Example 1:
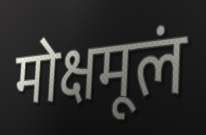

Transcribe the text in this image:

मोक्षमूलं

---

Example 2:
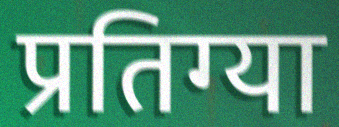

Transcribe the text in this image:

प्रतिग्या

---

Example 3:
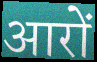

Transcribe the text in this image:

आरों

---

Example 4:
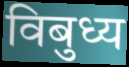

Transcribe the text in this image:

विबुध्य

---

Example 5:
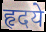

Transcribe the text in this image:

हृदये